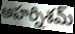
అహర్నిశమ్